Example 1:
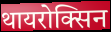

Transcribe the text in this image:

थायरोक्सिन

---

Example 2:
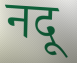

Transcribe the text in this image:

नदू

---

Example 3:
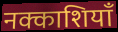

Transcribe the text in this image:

नक्काशियाँ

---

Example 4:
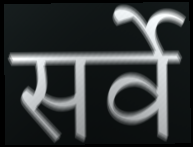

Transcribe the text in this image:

सर्वे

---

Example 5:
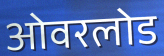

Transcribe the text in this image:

ओवरलोड